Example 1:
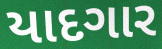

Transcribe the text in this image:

યાદગાર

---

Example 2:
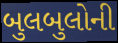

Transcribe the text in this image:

બુલબુલોની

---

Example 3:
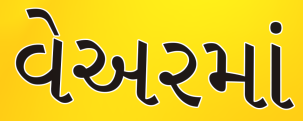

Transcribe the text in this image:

વેઅરમાં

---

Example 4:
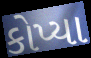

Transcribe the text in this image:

કોપ્યા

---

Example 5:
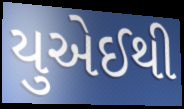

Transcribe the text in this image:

યુએઈથી